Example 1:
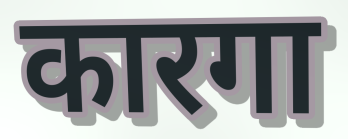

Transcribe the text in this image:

कारगा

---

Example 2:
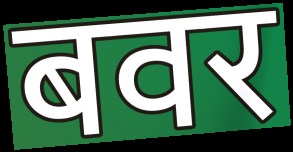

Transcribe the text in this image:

बवर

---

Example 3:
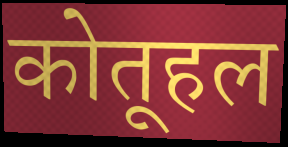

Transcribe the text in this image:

कोतूहल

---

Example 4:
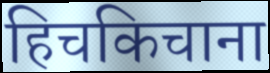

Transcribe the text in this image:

हिचकिचाना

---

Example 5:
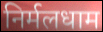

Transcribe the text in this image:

निर्मलधाम